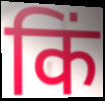
किं